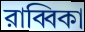
রাব্বিকা